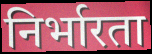
निर्भारता